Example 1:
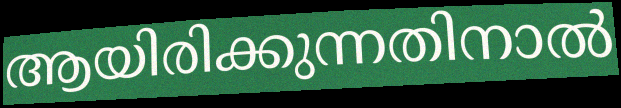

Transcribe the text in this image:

ആയിരിക്കുന്നതിനാൽ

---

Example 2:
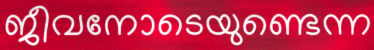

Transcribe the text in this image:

ജീവനോടെയുണ്ടെന്ന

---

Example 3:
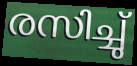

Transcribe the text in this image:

രസിച്ചു്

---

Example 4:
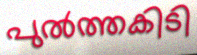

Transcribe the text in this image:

പുൽത്തകിടി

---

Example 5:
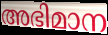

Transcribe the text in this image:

അഭിമാന